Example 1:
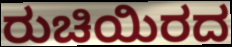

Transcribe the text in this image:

ರುಚಿಯಿರದ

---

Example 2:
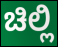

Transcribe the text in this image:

ಚಿಲ್ಲಿ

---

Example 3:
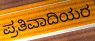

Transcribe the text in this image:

ಪ್ರತಿವಾದಿಯರ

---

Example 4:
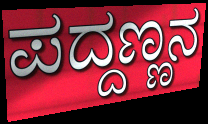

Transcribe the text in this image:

ಪದ್ದಣ್ಣನ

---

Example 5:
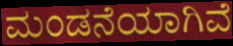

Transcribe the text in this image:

ಮಂಡನೆಯಾಗಿವೆ